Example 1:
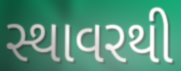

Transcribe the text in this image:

સ્થાવરથી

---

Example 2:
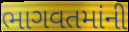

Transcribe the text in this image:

ભાગવતમાંની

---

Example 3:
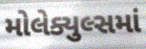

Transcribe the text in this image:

મોલેક્યુલ્સમાં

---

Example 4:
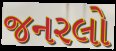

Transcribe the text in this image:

જનરલો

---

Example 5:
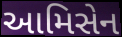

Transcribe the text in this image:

આમિસેન